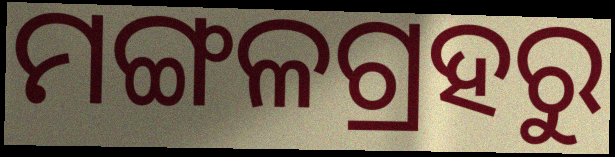
ମଙ୍ଗଳଗ୍ରହରୁ